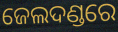
ଜେଲଦଣ୍ଡରେ